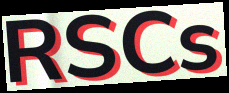
RSCs